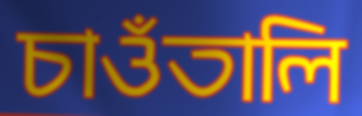
চাওঁতালি